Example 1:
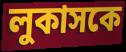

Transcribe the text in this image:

লুকাসকে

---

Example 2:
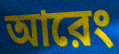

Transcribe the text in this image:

আরেং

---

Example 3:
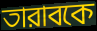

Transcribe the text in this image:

তারাবকে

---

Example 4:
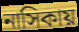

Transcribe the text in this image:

নাসিকায়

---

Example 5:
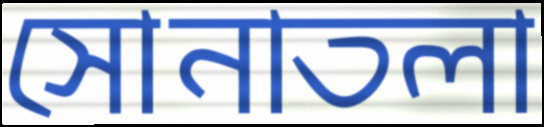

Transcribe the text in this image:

সোনাতলা